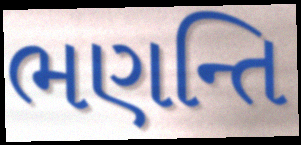
ભણન્તિ